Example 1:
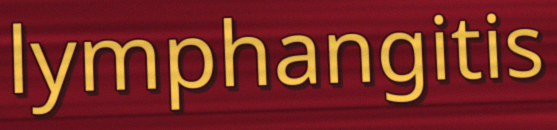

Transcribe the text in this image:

lymphangitis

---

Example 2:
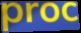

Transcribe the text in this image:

proc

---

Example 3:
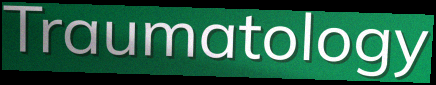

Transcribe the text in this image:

Traumatology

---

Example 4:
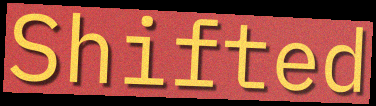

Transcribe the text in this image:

Shifted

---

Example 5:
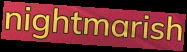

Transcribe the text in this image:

nightmarish